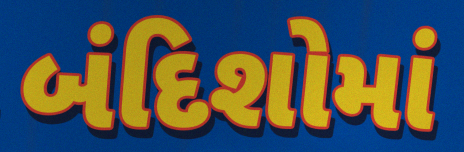
બંદિશોમાં